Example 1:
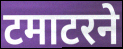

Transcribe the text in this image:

टमाटरने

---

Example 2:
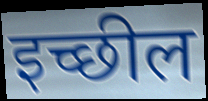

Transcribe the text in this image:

इच्छील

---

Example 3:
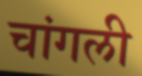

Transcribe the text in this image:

चांगली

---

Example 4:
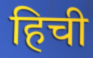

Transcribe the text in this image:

हिची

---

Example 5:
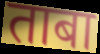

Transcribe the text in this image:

ताबा